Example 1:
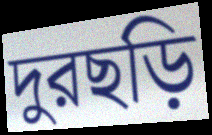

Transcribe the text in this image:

দুরছড়ি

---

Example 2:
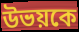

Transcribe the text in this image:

উভয়কে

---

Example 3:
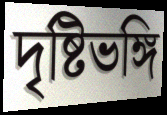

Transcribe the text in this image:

দৃষ্টিভঙ্গি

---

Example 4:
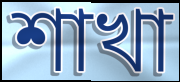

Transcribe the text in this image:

শাখা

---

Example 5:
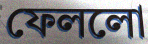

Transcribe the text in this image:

ফেললো